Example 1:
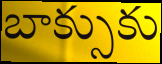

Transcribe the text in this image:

బాక్సుకు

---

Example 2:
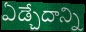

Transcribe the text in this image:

ఏడ్చేదాన్ని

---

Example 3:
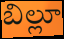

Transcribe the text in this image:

బిల్లూ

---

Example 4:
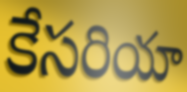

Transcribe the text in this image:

కేసరియా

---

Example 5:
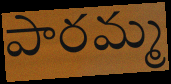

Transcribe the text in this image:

పారమ్మ